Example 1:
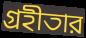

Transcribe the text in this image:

গ্রহীতার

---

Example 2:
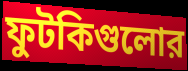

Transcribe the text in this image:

ফুটকিগুলোর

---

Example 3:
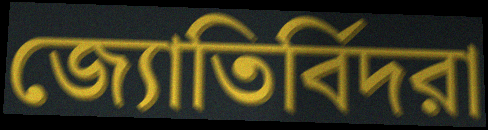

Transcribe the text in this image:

জ্যোতির্বিদরা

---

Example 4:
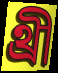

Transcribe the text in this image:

থ্রী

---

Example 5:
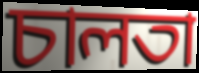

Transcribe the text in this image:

চালতা